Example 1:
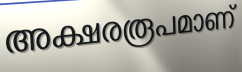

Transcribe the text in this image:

അക്ഷരരൂപമാണ്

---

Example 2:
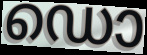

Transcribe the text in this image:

ഡൊ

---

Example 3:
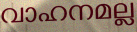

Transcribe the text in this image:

വാഹനമല്ല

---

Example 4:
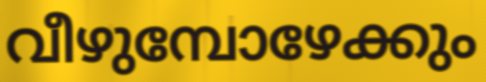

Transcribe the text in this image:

വീഴുമ്പോഴേക്കും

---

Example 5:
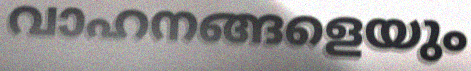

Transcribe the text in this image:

വാഹനങ്ങളെയും